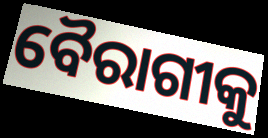
ବୈରାଗୀକୁ